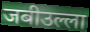
जबीउल्ला